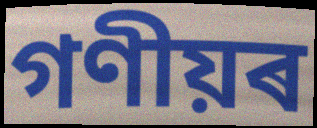
গণীয়ৰ